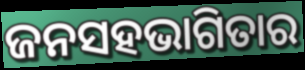
ଜନସହଭାଗିତାର